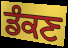
ਡੰਕਣ